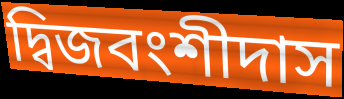
দ্বিজবংশীদাস